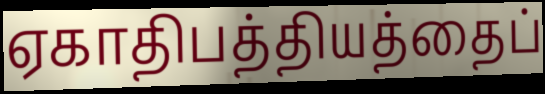
ஏகாதிபத்தியத்தைப்